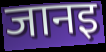
जानइ